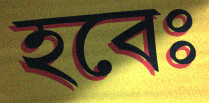
হবেঃ